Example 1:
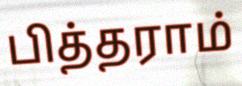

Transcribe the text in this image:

பித்தராம்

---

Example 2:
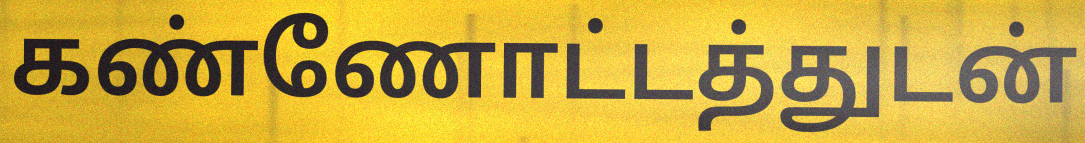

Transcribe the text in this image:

கண்ணோட்டத்துடன்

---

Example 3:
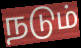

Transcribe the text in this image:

நடும்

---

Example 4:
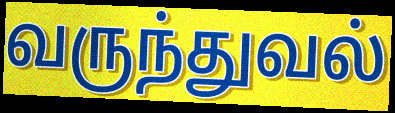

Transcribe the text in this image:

வருந்துவல்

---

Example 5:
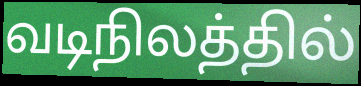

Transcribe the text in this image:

வடிநிலத்தில்